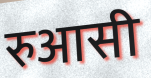
रुआसी